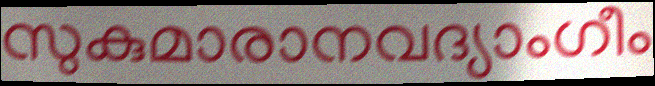
സുകുമാരാനവദ്യാംഗീം